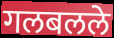
गलबलले